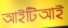
আইটিআই